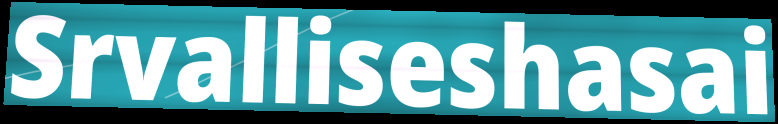
Srvalliseshasai